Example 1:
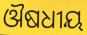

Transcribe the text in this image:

ଔଷଧୀୟ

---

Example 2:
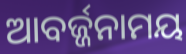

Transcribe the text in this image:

ଆବର୍ଜ୍ଜନାମୟ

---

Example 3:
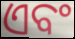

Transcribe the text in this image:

ଏବଂ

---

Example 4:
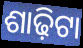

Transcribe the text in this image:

ଶାଢ଼ିଟା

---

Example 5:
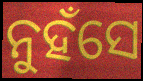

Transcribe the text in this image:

ନୁହଁସେ